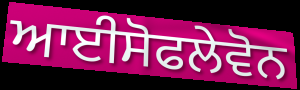
ਆਈਸੋਫਲੇਵੋਨ